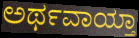
ಅರ್ಥವಾಯ್ತಾ